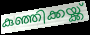
കുഞ്ഞിക്കയ്ക്ക്